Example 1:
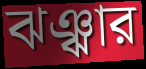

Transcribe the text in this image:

ঝঞ্ঝার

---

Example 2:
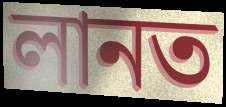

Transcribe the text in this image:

লানত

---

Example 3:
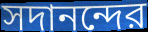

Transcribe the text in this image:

সদানন্দের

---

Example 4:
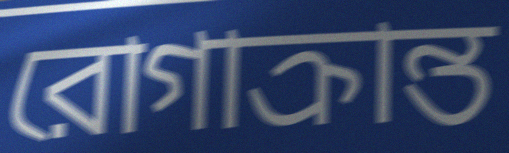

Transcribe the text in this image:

রোগাক্রান্ত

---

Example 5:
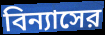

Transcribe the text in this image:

বিন্যাসের